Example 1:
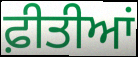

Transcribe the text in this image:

ਫ਼ੀਤੀਆਂ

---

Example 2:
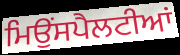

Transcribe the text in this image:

ਮਿਉਂਸਪੈਲਟੀਆਂ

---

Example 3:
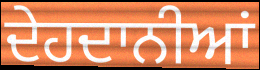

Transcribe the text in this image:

ਦੇਹਦਾਨੀਆਂ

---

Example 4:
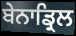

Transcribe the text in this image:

ਬੇਨਾਡ੍ਰਿਲ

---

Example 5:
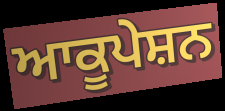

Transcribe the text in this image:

ਆਕੂਪੇਸ਼ਨ